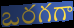
ఒరగగా